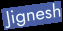
Jignesh